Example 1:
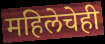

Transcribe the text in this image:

महिलेचेही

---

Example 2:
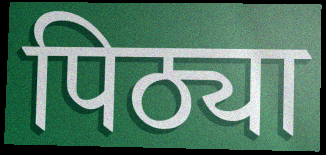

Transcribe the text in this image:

पिठ्या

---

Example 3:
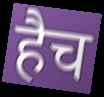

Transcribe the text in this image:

हैच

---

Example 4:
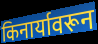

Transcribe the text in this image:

किनार्यावरून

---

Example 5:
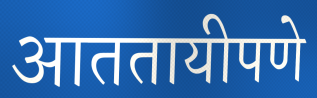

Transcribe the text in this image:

आततायीपणे